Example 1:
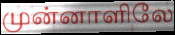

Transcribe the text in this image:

முன்னாளிலே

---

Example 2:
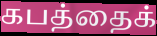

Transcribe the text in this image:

கபத்தைக்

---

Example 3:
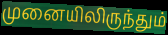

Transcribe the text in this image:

முனையிலிருந்தும்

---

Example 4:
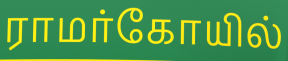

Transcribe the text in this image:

ராமர்கோயில்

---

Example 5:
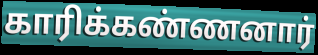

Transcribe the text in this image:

காரிக்கண்ணனார்